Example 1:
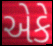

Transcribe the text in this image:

એકે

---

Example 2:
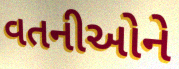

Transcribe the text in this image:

વતનીઓને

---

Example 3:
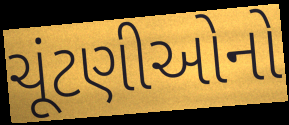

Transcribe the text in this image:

ચૂંટણીઓનો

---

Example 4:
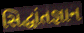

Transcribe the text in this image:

સિદ્ધાંતજ્ઞાન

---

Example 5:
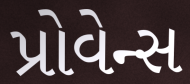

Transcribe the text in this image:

પ્રોવેન્સ